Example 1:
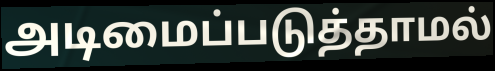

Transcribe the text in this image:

அடிமைப்படுத்தாமல்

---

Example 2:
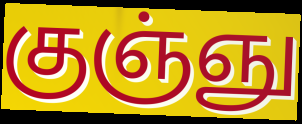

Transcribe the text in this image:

குஞ்ஞு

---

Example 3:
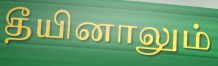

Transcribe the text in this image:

தீயினாலும்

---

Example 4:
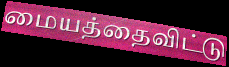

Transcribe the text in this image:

மையத்தைவிட்டு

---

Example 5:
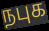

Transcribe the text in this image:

நபுக